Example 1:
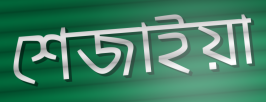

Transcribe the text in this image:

শেজাইয়া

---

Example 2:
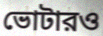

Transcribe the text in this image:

ভোটারও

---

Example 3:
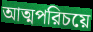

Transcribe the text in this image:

আত্মপরিচয়ে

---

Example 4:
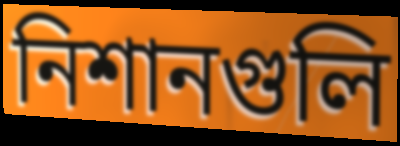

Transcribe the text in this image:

নিশানগুলি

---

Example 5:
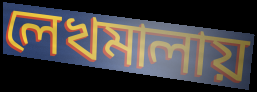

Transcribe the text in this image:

লেখমালায়